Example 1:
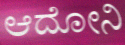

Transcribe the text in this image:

ಆದೋನಿ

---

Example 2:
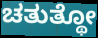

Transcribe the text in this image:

ಚತುತ್ಥೋ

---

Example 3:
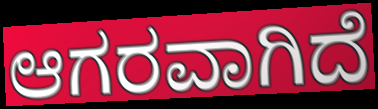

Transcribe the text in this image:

ಆಗರವಾಗಿದೆ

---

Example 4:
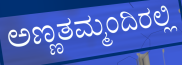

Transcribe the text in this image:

ಅಣ್ಣತಮ್ಮಂದಿರಲ್ಲಿ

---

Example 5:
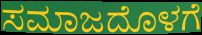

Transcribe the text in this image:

ಸಮಾಜದೊಳಗೆ